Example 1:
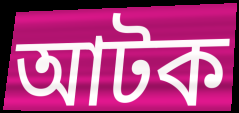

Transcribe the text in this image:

আটক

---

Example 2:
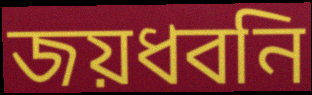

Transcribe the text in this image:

জয়ধবনি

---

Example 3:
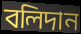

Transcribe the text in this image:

বলিদান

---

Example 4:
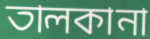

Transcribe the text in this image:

তালকানা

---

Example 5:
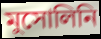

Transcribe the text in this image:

মুসোলিনি